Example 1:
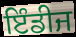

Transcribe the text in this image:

ਇੰਡੀਜ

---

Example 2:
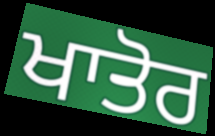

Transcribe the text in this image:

ਖਾਤੋਰ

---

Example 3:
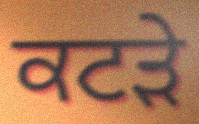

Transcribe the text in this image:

ਕਟੜੇ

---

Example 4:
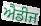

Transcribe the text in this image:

ਐਡੀਜ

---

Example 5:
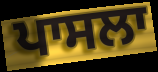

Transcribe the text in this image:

ਪਾਸਲਾ